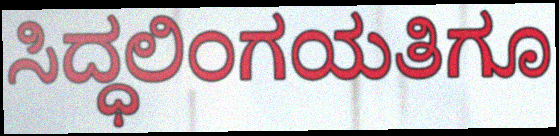
ಸಿದ್ಧಲಿಂಗಯತಿಗೂ